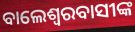
ବାଲେଶ୍ବରବାସୀଙ୍କ